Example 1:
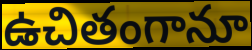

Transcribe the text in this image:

ఉచితంగానూ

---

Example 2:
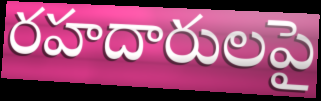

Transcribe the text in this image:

రహదారులపై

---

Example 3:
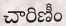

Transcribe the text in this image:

చారిణీం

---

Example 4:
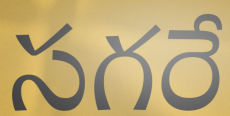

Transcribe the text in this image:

సగరే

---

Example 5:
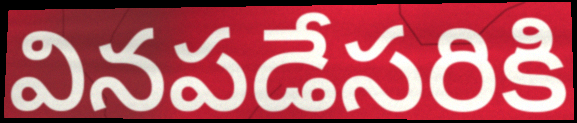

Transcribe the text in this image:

వినపడేసరికి